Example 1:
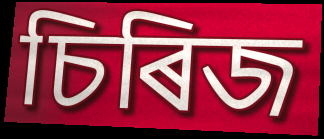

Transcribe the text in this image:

চিৰিজ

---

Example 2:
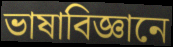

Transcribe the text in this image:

ভাষাবিজ্ঞানে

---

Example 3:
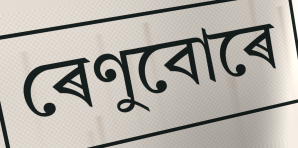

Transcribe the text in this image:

ৰেণুবোৰে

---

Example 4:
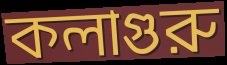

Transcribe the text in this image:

কলাগুৰু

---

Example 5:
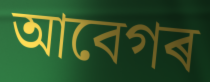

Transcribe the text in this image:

আবেগৰ